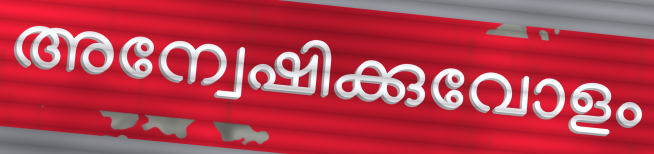
അന്വേഷിക്കുവോളം